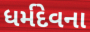
ધર્મદેવના